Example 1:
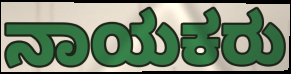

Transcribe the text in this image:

ನಾಯಕರು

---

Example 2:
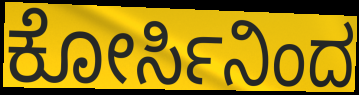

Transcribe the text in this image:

ಕೋರ್ಸಿನಿಂದ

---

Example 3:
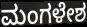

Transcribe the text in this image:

ಮಂಗಳೇಶ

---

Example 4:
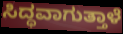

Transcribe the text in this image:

ಸಿದ್ಧವಾಗುತ್ತಾಳೆ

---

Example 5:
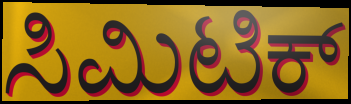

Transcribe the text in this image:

ಸಿಮಿಟಿಕ್